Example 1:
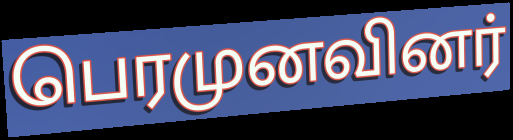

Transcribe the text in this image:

பெரமுனவினர்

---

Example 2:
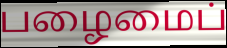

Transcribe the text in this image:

பழைமைப்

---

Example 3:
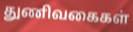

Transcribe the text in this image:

துணிவகைகள்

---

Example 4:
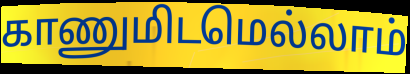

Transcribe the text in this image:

காணுமிடமெல்லாம்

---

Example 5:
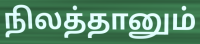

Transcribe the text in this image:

நிலத்தானும்